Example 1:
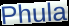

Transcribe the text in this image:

Phula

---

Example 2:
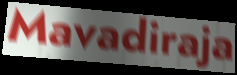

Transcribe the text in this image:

Mavadiraja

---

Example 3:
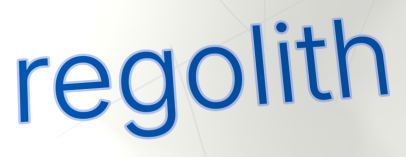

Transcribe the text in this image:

regolith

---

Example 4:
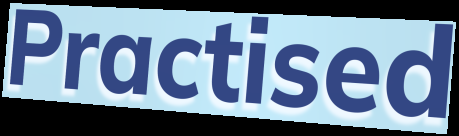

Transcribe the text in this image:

Practised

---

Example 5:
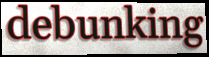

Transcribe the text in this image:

debunking